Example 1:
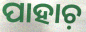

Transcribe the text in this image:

ପାହାଚ଼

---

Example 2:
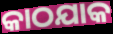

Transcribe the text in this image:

କାଠଯାକ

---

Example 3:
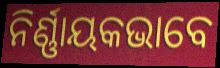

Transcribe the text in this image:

ନିର୍ଣ୍ଣାୟକଭାବେ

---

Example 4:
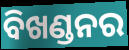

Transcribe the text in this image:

ବିଖଣ୍ଡନର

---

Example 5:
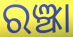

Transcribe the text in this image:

ରଞ୍ଝା